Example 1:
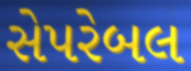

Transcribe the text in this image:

સેપરેબલ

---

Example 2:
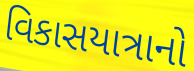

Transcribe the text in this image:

વિકાસયાત્રાનો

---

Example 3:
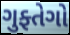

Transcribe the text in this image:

ગુફ્તેગો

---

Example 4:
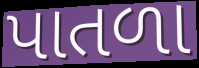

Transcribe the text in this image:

પાતળા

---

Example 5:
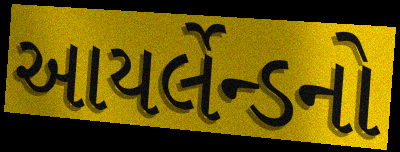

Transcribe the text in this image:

આયર્લેન્ડનો